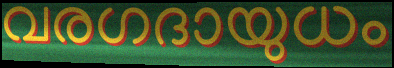
വരഗദായുധം